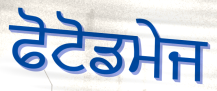
ਫੋਟੋਡਮੇਜ